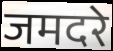
जमदरे